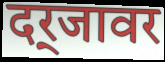
दर्जावर